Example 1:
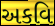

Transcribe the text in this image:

અકવિ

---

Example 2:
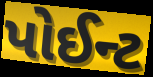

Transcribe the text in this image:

પોઈન્ટ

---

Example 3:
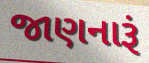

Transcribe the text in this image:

જાણનારૂં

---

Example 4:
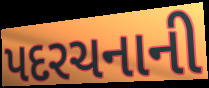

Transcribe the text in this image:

પદરચનાની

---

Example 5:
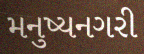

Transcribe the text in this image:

મનુષ્યનગરી